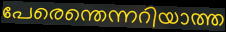
പേരെന്തെന്നറിയാത്ത